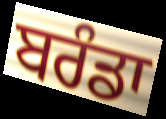
ਬਰੰਡਾ